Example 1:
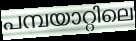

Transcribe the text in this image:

പമ്പയാറ്റിലെ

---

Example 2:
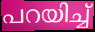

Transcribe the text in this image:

പറയിച്ച്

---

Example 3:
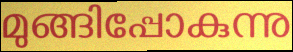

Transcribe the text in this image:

മുങ്ങിപ്പോകുന്നു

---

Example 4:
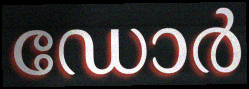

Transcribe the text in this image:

ഡോർ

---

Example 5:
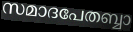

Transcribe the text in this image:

സമാദപേതബ്ബാ